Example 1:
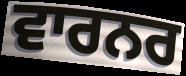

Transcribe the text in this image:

ਵਾਰਨਰ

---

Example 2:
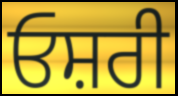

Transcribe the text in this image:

ਓਸ਼ਰੀ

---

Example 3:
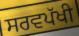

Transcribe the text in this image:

ਸਰਵਪੱਖੀ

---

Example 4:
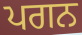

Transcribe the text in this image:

ਪਗਨ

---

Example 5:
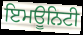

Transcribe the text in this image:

ਇਮਊਨਿਟੀ